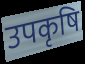
उपकृषि